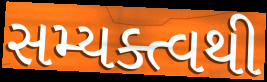
સમ્યક્ત્વથી